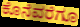
ಕೊನೆವರೆಗೂ